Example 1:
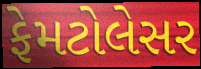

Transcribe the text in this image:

ફેમટોલેસર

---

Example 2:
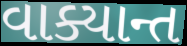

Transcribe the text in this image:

વાક્યાન્ત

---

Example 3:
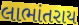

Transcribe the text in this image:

લાભાંતરાય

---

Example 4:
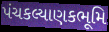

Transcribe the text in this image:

પંચકલ્યાણકભૂમિ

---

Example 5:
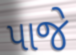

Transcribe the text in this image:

પાજે